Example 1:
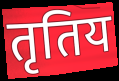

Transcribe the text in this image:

तृतिय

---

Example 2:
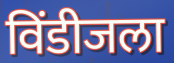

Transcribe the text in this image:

विंडीजला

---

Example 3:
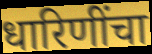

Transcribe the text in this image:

धारिणींचा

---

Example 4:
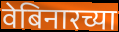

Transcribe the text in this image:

वेबिनारच्या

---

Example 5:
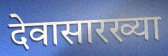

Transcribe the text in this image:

देवासारख्या